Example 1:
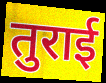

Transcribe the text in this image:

तुराई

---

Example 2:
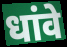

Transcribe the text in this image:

धांवे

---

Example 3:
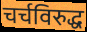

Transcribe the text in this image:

चर्चविरुद्ध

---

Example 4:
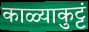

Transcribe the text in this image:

काळ्याकुट्टं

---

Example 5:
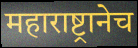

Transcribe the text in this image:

महाराष्ट्रानेच